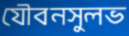
যৌবনসুলভ